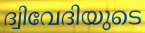
ദ്വിവേദിയുടെ